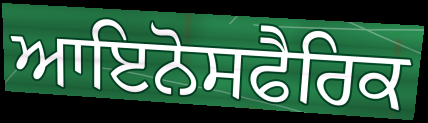
ਆਇਨੋਸਫੈਰਿਕ